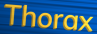
Thorax